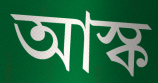
আস্ক